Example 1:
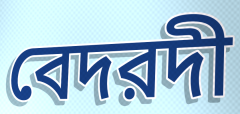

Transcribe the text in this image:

বেদরদী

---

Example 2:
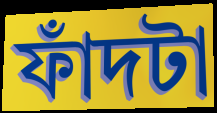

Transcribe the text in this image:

ফাঁদটা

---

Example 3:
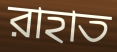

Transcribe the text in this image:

রাহাত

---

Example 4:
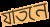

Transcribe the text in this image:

যাতনে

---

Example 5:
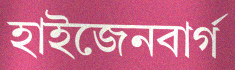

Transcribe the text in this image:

হাইজেনবার্গ